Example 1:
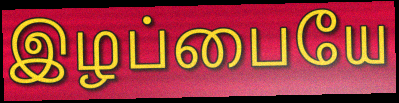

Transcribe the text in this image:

இழப்பையே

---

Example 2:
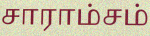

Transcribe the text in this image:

சாராம்சம்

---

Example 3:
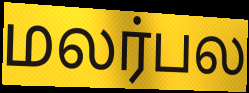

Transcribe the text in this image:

மலர்பல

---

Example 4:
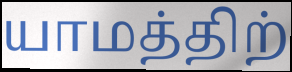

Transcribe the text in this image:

யாமத்திற்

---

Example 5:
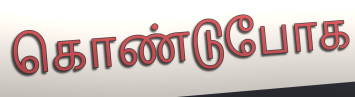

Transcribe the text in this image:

கொண்டுபோக